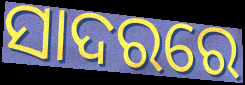
ସାଦରରେ